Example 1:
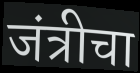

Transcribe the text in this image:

जंत्रीचा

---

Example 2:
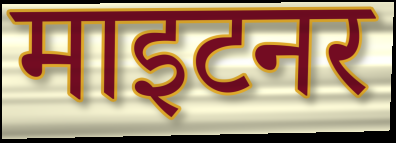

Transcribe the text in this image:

माइटनर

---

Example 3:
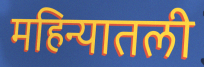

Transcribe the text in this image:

महिन्यातली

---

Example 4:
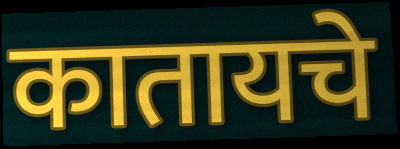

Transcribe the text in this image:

कातायचे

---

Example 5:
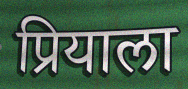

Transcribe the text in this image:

प्रियाला